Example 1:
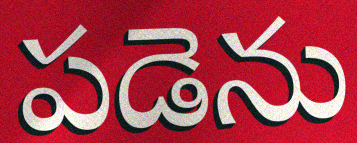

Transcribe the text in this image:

పడెను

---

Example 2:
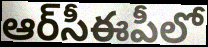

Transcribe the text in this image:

ఆర్‌సీఈపీలో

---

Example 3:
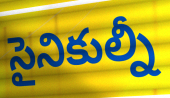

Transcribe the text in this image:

సైనికుల్నీ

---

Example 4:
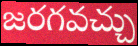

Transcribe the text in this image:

జరగవచ్చు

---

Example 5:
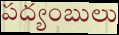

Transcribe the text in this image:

పద్యంబులు